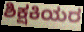
ಶಿಕ್ಷಕಿಯರ